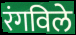
रंगविले